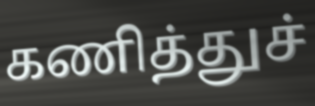
கணித்துச்